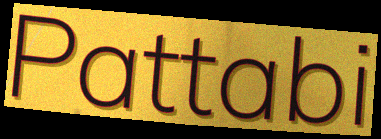
Pattabi